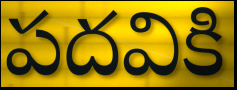
పదవికి